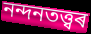
নন্দনতত্ত্বৰ